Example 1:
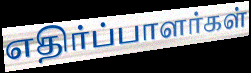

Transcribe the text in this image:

எதிர்ப்பாளர்கள்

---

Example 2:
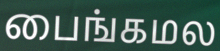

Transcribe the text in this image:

பைங்கமல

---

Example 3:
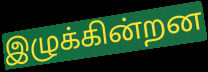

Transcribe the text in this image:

இழுக்கின்றன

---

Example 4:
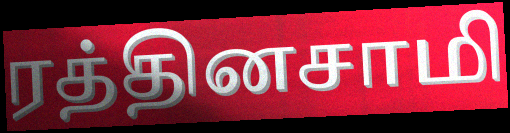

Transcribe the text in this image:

ரத்தினசாமி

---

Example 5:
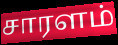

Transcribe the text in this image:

சாரளம்